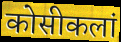
कोसीकलां